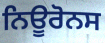
ਨਿਊਰੋਨਸ